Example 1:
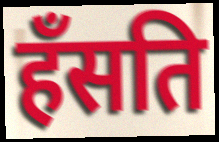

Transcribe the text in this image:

हँसति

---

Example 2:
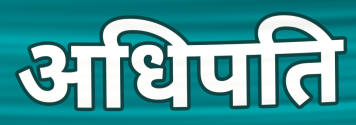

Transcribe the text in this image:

अधिपति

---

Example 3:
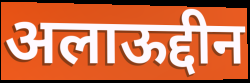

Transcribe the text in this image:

अलाऊद्दीन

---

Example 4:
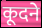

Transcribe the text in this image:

कूदने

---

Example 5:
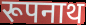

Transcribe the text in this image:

रूपनाथ